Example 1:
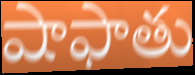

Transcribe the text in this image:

షాఫాతు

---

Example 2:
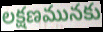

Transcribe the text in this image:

లక్షణమునకు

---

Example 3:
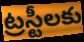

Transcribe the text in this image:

ట్రస్టీలకు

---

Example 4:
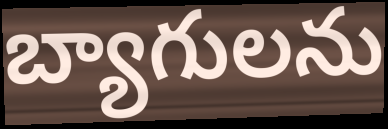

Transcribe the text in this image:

బ్యాగులను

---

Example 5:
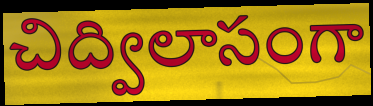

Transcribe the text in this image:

చిద్విలాసంగా